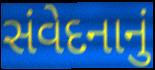
સંવેદનાનું